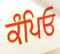
ਕੰਪਿਓ